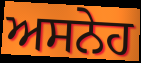
ਅਸਨੇਹ